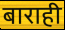
बाराही